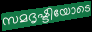
സമദൃഷ്ടിയോടെ